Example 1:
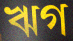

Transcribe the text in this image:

ঋগ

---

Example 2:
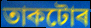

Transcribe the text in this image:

তাকটোৰ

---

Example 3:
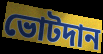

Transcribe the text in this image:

ভোটদান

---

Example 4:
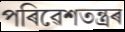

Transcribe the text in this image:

পৰিৱেশতন্ত্ৰৰ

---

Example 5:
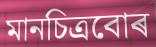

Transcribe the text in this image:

মানচিত্ৰবোৰ